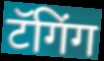
टॅगिंग